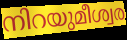
നിറയുമീശ്വര